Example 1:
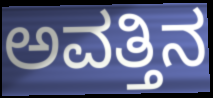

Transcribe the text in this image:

ಅವತ್ತಿನ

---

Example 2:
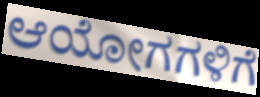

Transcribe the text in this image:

ಆಯೋಗಗಳಿಗೆ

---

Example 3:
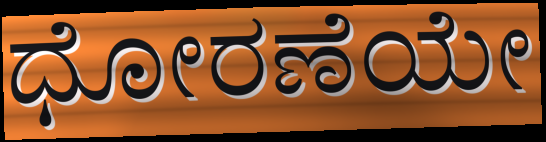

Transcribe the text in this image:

ಧೋರಣೆಯೇ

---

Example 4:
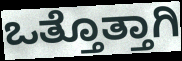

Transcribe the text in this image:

ಒತ್ತೊತ್ತಾಗಿ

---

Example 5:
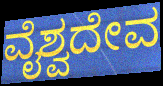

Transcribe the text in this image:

ವೈಶ್ವದೇವ